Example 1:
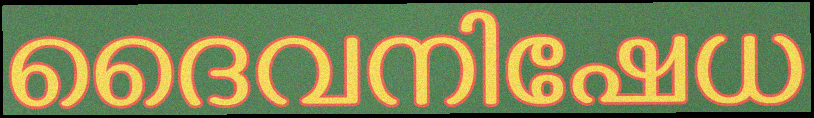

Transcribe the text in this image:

ദൈവനിഷേധ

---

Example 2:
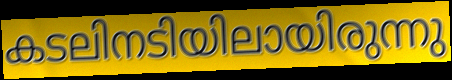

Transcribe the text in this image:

കടലിനടിയിലായിരുന്നു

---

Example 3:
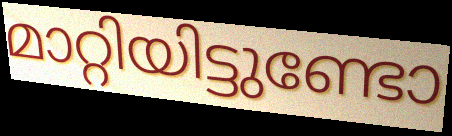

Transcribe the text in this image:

മാറ്റിയിട്ടുണ്ടോ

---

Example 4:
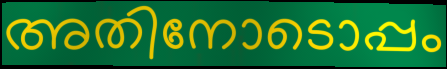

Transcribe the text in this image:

അതിനോടൊപ്പം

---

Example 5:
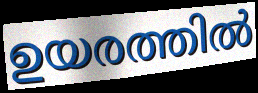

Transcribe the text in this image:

ഉയരത്തിൽ